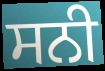
ਸਨੀ